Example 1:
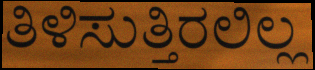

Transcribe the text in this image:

ತಿಳಿಸುತ್ತಿರಲಿಲ್ಲ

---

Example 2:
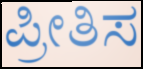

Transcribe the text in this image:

ಪ್ರೀತಿಸ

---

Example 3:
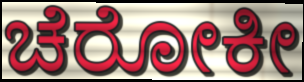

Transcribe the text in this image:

ಚೆರೋಕೀ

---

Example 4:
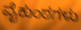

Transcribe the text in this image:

ವೈಕುಂಠಗಳು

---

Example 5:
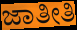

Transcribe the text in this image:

ಜಾತೀತಿ